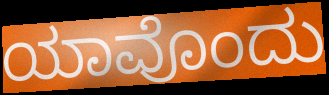
ಯಾವೊಂದು